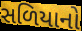
સળિયાનો